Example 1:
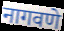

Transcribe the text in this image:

नागवणे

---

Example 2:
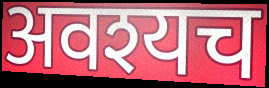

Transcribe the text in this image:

अवश्यच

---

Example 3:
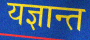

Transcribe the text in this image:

यज्ञान्त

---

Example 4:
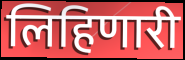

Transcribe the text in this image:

लिहिणारी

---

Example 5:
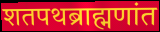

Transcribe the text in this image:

शतपथब्राह्मणांत